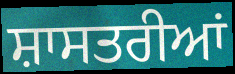
ਸ਼ਾਸਤਰੀਆਂ